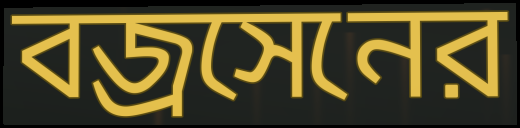
বজ্রসেনের